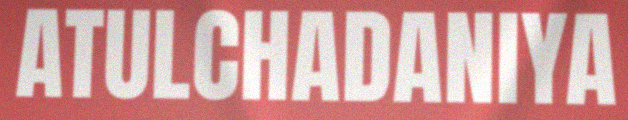
ATULCHADANIYA